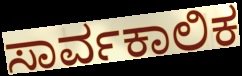
ಸಾರ್ವಕಾಲಿಕ